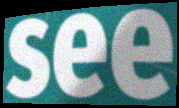
see